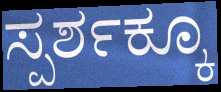
ಸ್ಪರ್ಶಕ್ಕೂ